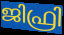
ജിഫ്രി